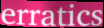
erratics